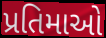
પ્રતિમાઓ